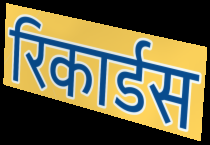
रिकार्डस